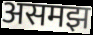
असमझ